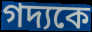
গদ্যকে